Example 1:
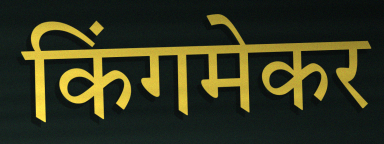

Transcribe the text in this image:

किंगमेकर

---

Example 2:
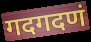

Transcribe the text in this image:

गदगदणं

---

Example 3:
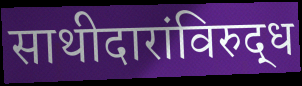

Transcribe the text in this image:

साथीदारांविरुद्ध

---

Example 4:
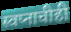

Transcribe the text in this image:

स्वप्नाचीही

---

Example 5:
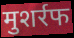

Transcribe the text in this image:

मुशर्रफ